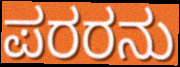
ಪರರನು